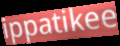
ippatikee